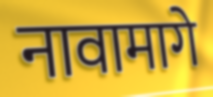
नावामागे